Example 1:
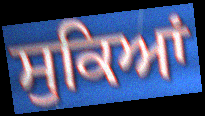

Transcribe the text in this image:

ਸੁਕਿਆਂ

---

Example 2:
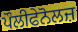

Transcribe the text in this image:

ਪੌਲੀਫੇਨੋਲਜ਼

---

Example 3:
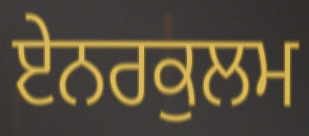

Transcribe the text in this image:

ਏਨਰਕੁਲਮ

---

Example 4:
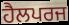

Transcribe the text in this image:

ਹੈਲਪਰਜ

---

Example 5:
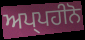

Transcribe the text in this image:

ਅਪ੍ਪਹੀਨੋ